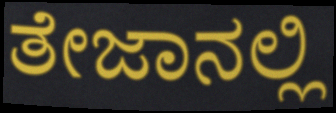
ತೇಜಾನಲ್ಲಿ